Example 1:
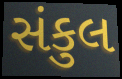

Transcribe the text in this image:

સંકુલ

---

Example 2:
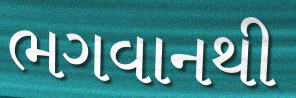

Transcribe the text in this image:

ભગવાનથી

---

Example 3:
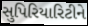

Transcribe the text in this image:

સુપિરિયારિટીને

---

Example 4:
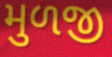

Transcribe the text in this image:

મુળજી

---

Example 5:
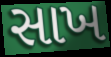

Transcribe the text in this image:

સાખ